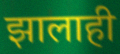
झालाही